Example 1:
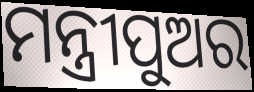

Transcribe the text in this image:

ମନ୍ତ୍ରୀପୁଅର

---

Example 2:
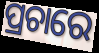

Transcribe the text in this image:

ପ୍ରଚାରେ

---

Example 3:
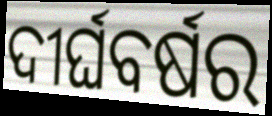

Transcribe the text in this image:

ଦୀର୍ଘବର୍ଷର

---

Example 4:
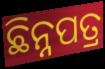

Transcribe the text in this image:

ଛିନ୍ନପତ୍ର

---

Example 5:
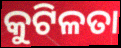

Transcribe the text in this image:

କୁଟିଳତା